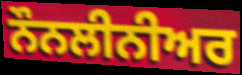
ਨੌਨਲੀਨੀਅਰ